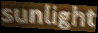
sunlight